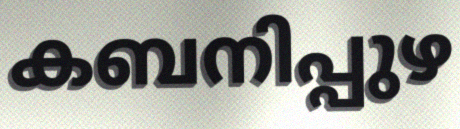
കബനിപ്പുഴ